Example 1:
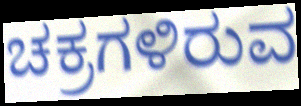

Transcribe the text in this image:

ಚಕ್ರಗಳಿರುವ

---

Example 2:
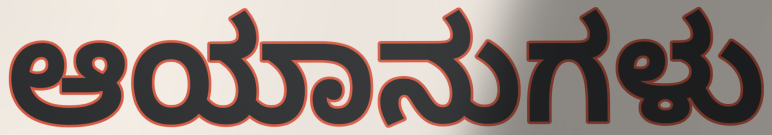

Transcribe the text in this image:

ಆಯಾನುಗಳು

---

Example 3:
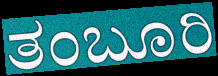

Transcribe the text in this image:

ತಂಬೂರಿ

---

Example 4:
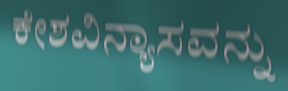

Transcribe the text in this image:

ಕೇಶವಿನ್ಯಾಸವನ್ನು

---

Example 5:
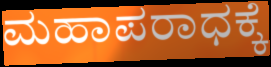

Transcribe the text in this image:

ಮಹಾಪರಾಧಕ್ಕೆ